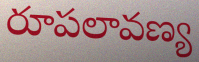
రూపలావణ్య